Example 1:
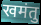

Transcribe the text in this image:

खमंतु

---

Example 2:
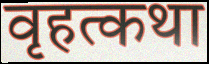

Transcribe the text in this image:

वृहत्कथा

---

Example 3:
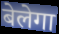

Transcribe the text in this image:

बेलेगा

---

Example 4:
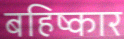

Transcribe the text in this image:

बहिष्कार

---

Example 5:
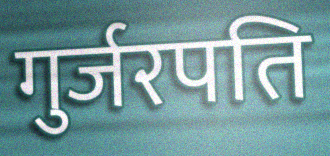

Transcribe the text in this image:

गुर्जरपति